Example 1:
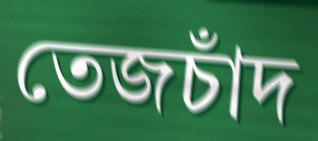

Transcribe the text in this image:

তেজচাঁদ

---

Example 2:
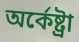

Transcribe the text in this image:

অর্কেষ্ট্রা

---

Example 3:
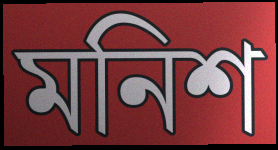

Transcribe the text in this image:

মনিশ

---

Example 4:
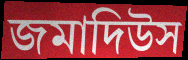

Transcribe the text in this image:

জমাদিউস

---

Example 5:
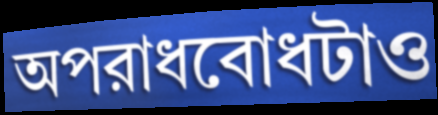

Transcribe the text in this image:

অপরাধবোধটাও